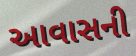
આવાસની